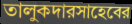
তালুকদারসাহেবের